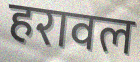
हरावल